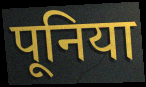
पूनिया